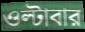
ওল্টাবার